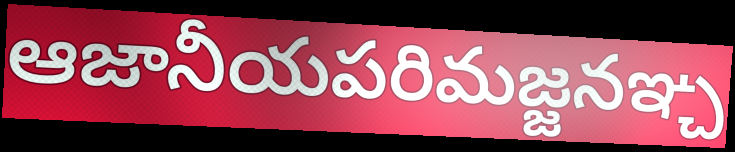
ఆజానీయపరిమజ్జనఞ్చ